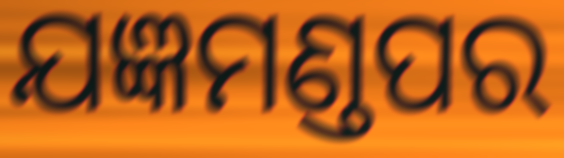
ଯଜ୍ଞମଣ୍ଡପର